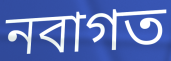
নবাগত